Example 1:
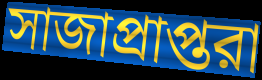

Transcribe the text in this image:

সাজাপ্রাপ্তরা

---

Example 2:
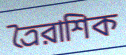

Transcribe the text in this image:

ত্রৈরাশিক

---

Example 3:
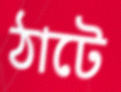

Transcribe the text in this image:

ঠাটে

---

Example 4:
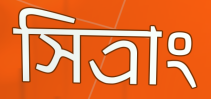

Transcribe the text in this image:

সিত্রাং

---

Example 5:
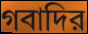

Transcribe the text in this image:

গবাদির